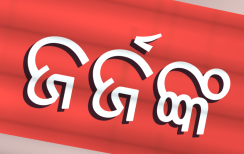
ଜର୍ଜଙ୍କ